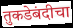
तुकडेबंदीचा